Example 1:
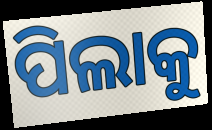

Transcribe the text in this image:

ପିଲାକୁ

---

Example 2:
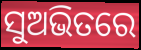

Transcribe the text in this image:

ସୁଅଭିତରେ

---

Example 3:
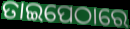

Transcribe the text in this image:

ତାଇପେଠାରେ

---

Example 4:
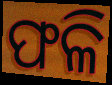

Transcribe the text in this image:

ଫଳି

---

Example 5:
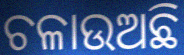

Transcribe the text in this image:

ଚଳାଉଅଛି